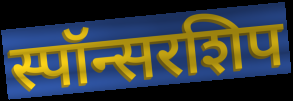
स्पॉन्सरशिप